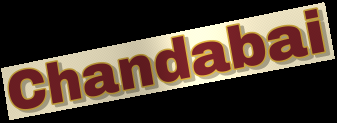
Chandabai